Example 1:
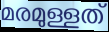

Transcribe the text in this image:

മരമുള്ളത്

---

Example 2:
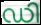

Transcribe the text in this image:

ഡി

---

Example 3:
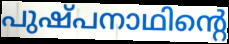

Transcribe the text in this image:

പുഷ്പനാഥിന്റെ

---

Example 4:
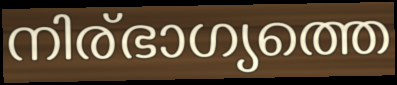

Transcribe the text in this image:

നിര്ഭാഗ്യത്തെ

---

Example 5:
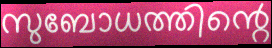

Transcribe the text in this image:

സുബോധത്തിന്റെ